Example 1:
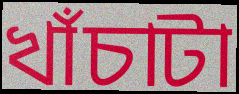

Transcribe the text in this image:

খাঁচাটা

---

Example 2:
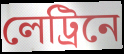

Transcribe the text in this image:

লেট্রিনে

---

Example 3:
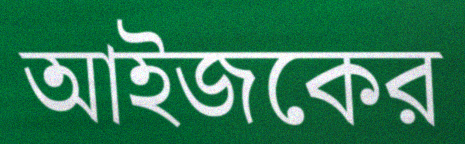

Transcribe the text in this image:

আইজকের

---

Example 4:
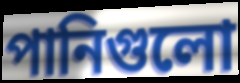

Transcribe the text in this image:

পানিগুলো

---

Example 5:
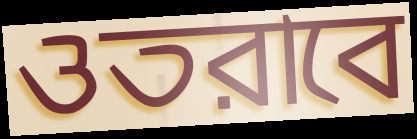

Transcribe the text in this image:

ওতরাবে